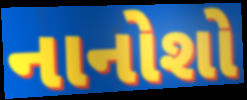
નાનોશો